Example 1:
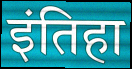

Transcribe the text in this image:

इंतिहा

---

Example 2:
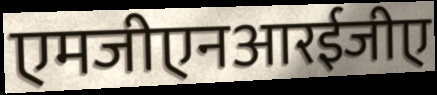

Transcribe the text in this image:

एमजीएनआरईजीए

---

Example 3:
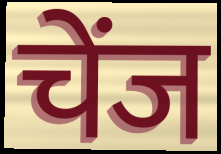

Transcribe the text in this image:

चेंज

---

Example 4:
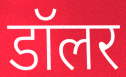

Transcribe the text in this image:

डॉलर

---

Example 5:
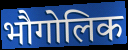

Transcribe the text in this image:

भौगोलिक